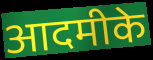
आदमीके